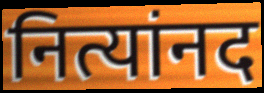
नित्यांनद